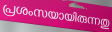
പ്രശംസയായിരുന്നതു